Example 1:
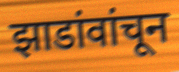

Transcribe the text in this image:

झाडांवांचून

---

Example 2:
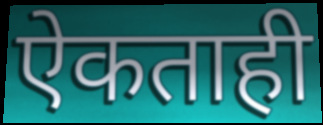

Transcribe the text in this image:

ऐकताही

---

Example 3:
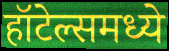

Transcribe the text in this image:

हॉटेल्समध्ये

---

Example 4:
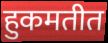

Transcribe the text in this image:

हुकमतीत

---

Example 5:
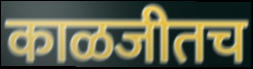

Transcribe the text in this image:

काळजीतच